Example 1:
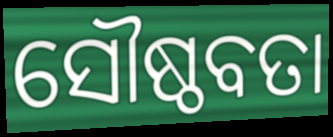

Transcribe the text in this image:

ସୌଷ୍ଠବତା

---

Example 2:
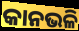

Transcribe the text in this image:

କାନଭଳି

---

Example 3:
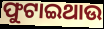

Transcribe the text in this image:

ଫୁଟାଇଥାଉ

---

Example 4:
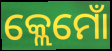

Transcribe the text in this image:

କ୍ଲେମୋଁ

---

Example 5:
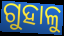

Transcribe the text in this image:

ଗୁହାଳୁ